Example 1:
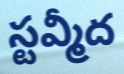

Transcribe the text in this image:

స్టవ్మీద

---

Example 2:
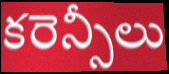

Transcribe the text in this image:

కరెన్సీలు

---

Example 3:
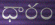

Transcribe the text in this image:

ధారం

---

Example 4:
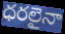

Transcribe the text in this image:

ధరలైనా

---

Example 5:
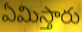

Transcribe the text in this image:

ఏమిస్తారు